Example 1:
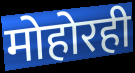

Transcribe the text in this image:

मोहोरही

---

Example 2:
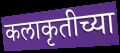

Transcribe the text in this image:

कलाकृतीच्या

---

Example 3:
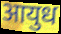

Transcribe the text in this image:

आयुध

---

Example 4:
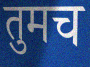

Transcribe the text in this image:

तुमच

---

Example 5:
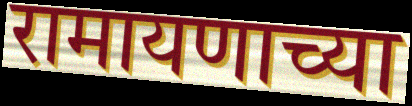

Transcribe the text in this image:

रामायणाच्या